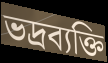
ভদ্রব্যক্তি